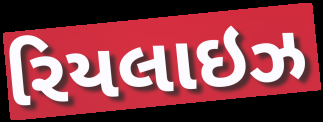
રિયલાઇઝ